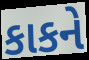
કાકને